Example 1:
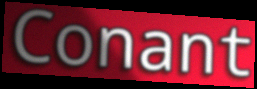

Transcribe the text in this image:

Conant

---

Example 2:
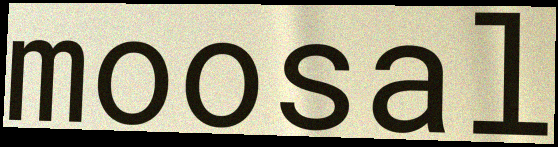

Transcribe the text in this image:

moosal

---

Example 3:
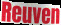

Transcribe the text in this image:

Reuven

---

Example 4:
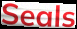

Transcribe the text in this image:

Seals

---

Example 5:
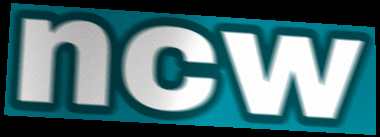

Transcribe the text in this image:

ncw